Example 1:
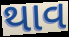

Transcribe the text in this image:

થાવ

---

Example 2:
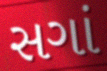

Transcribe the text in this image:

સગાં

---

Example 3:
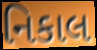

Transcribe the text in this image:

નિકાલ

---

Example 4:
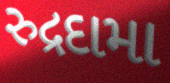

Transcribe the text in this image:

રુદ્રદામા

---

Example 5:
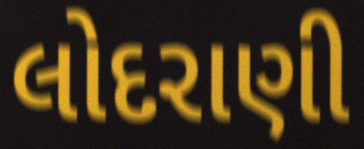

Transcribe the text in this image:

લોદરાણી